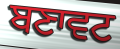
ਬਣਾਵਟ